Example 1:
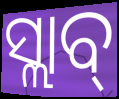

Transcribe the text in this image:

ସ୍ଲାବ୍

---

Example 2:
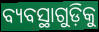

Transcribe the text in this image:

ବ୍ୟବସ୍ଥାଗୁଡ଼ିକୁ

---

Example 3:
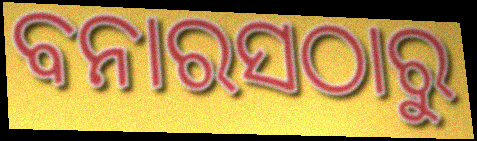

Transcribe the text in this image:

ବନାରସଠାରୁ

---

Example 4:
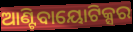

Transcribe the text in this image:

ଆଣ୍ଟିବାୟୋଟିକ୍ସର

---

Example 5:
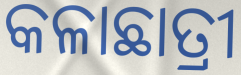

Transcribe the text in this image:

କଳାଛାତ୍ରୀ